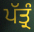
ਪੱਤ੍ਰੰ